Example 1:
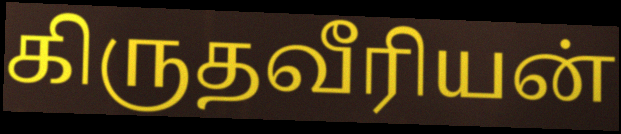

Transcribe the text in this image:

கிருதவீரியன்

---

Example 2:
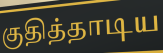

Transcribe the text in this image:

குதித்தாடிய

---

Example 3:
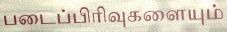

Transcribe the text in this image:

படைப்பிரிவுகளையும்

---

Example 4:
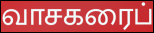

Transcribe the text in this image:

வாசகரைப்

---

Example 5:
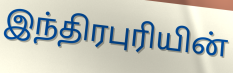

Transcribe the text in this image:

இந்திரபுரியின்